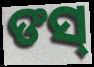
ଙସ୍